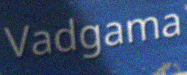
Vadgama